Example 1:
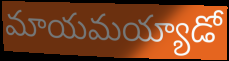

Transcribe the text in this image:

మాయమయ్యాడో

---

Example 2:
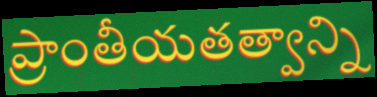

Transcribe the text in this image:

ప్రాంతీయతత్వాన్ని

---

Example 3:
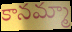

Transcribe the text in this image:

కానమ్మా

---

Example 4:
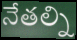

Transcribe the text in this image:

నేతల్ని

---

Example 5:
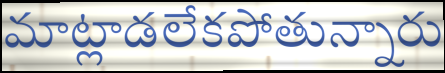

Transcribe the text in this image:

మాట్లాడలేకపోతున్నారు